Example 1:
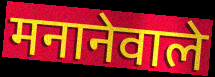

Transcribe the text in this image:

मनानेवाले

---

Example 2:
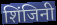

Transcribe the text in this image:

शिंजिनी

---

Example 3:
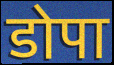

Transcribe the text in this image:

डोपा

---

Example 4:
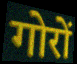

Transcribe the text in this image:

गोरों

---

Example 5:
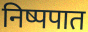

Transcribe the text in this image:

निष्पपात